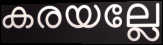
കരയല്ലേ